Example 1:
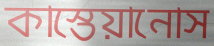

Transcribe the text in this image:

কাস্তেয়ানোস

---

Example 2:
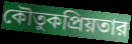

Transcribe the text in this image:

কৌতুকপ্রিয়তার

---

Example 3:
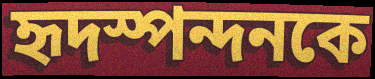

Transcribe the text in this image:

হৃদস্পন্দনকে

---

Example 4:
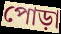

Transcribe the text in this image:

পোড়া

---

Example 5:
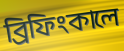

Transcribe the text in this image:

ব্রিফিংকালে